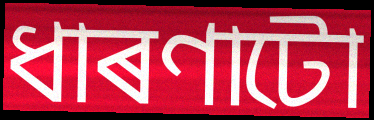
ধাৰণাটো